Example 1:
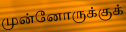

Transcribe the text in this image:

முன்னோருக்குக்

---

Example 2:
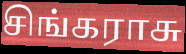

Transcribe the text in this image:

சிங்கராசு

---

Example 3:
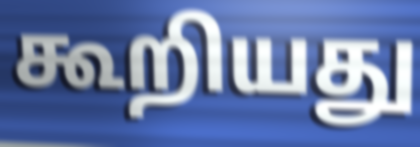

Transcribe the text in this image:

கூறியது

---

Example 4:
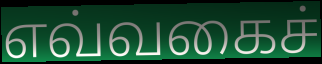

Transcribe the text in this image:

எவ்வகைச்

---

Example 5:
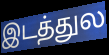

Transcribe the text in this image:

இடத்துல